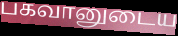
பகவானுடைய